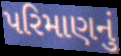
પરિમાણનું